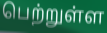
பெற்றுள்ள